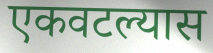
एकवटल्यास